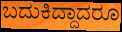
ಬದುಕಿದ್ದಾದರೂ